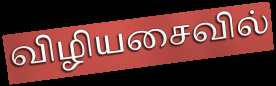
விழியசைவில்